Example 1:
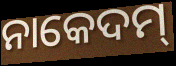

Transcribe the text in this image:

ନାକେଦମ୍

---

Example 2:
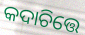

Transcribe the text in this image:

କଦାଚିତ୍ତେ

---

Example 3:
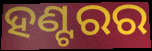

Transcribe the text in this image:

ହଣ୍ଟରର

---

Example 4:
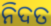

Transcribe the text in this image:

ନିଦତ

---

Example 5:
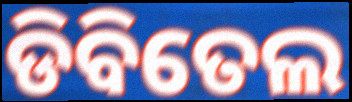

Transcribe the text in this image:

ଡିବିତେଲ